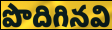
పొదిగినవి